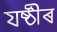
যষ্ঠীৰ